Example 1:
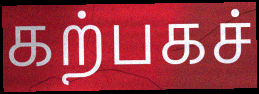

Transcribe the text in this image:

கற்பகச்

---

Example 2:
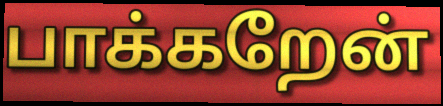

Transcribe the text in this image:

பாக்கறேன்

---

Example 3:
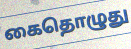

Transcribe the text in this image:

கைதொழுது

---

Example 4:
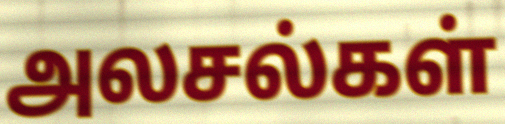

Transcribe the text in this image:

அலசல்கள்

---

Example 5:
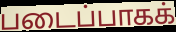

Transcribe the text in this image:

படைப்பாகக்